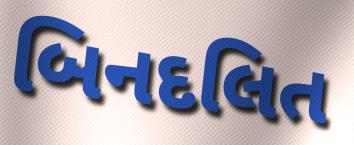
બિનદલિત